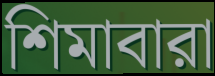
শিমাবারা